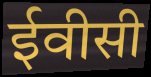
ईवीसी